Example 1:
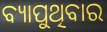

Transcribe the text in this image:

ବ୍ୟାପୁଥିବାର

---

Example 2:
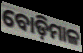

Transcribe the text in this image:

ବୋଡ଼ିମାଳ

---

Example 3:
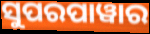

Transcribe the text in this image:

ସୁପରପାୱାର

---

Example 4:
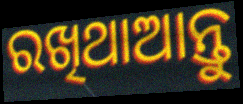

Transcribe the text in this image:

ରଖିଥାଆନ୍ତୁ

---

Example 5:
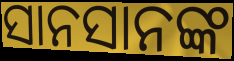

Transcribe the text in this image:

ସାନସାନଙ୍କ